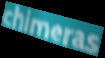
chimeras